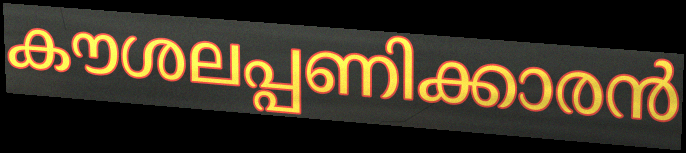
കൗശലപ്പണിക്കാരൻ